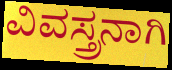
ವಿವಸ್ತ್ರನಾಗಿ